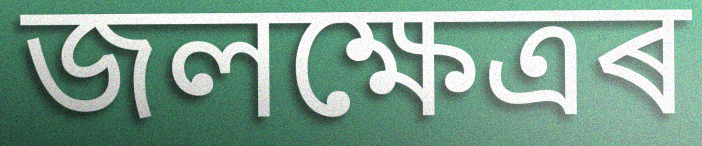
জলক্ষেত্ৰৰ